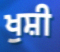
ਖੁਸ਼ੀ